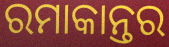
ରମାକାନ୍ତର